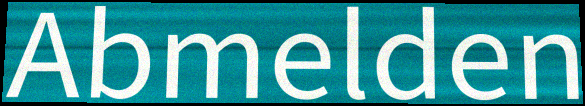
Abmelden